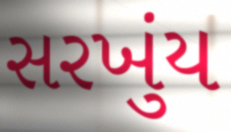
સરખુંય